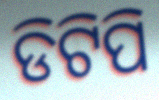
ଡିଟିପି